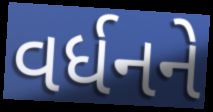
વર્ધનને